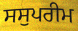
ਸਸੁਪਰੀਮ